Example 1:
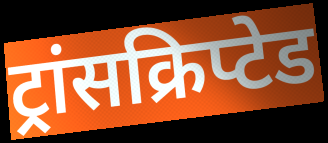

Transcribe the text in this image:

ट्रांसक्रिप्टेड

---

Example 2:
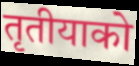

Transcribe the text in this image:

तृतीयाको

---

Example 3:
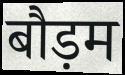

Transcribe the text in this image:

बौड़म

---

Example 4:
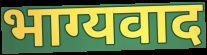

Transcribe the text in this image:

भाग्यवाद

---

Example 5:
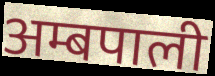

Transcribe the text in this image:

अम्बपाली